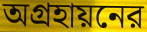
অগ্রহায়নের